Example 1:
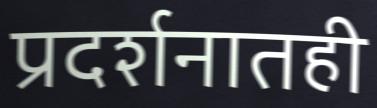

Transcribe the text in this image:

प्रदर्शनातही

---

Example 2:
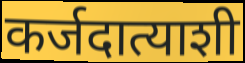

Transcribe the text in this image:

कर्जदात्याशी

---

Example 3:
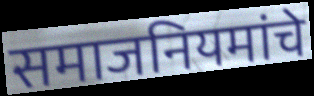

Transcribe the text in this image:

समाजनियमांचे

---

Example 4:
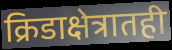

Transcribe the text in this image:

क्रिडाक्षेत्रातही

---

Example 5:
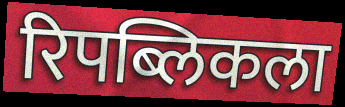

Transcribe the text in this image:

रिपब्लिकला